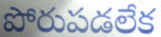
పోరుపడలేక